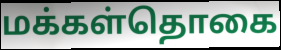
மக்கள்தொகை